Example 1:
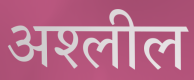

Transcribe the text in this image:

अश्लील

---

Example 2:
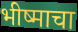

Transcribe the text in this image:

भीष्माचा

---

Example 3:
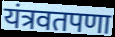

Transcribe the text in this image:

यंत्रवतपणा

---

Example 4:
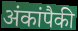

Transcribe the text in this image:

अंकांपैकी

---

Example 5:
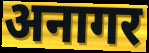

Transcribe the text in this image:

अनागर